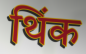
थिंक